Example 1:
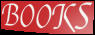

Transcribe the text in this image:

BOOKS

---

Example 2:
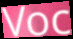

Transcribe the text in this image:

Voc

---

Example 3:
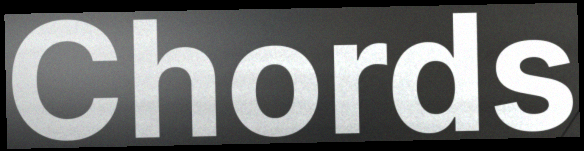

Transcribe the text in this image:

Chords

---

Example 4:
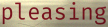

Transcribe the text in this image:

pleasing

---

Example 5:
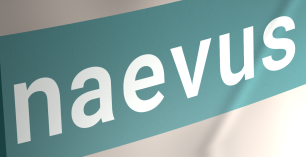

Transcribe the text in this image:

naevus